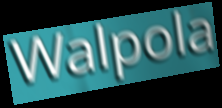
Walpola